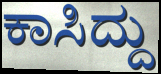
ಕಾಸಿದ್ದು